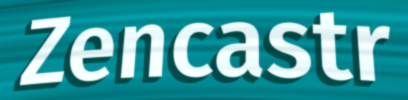
Zencastr